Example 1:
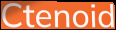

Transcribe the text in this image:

Ctenoid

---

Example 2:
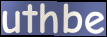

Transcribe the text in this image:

uthbe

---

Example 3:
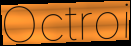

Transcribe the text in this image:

Octroi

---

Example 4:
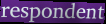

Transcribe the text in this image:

respondent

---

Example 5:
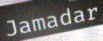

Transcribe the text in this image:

Jamadar